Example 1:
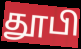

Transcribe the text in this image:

தூபி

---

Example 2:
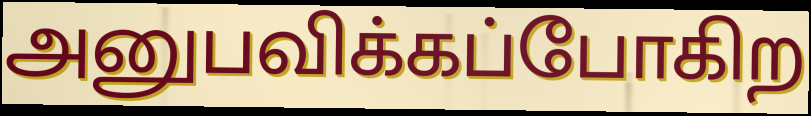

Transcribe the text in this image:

அனுபவிக்கப்போகிற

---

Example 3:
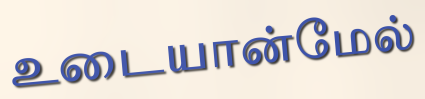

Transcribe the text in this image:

உடையான்மேல்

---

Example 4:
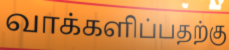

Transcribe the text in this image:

வாக்களிப்பதற்கு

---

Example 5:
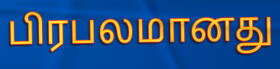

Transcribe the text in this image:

பிரபலமானது